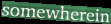
somewherein